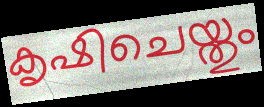
കൃഷിചെയ്തും